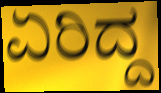
ಏರಿದ್ದ